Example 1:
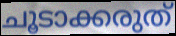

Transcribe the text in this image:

ചൂടാക്കരുത്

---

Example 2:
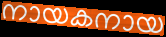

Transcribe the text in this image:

നായകനായ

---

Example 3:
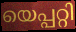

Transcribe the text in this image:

യെപ്പറ്റി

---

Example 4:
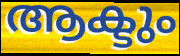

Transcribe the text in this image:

ആക്ടും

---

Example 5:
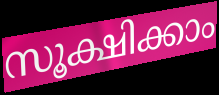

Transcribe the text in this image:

സൂക്ഷിക്കാം